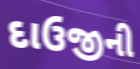
દાઉજીની